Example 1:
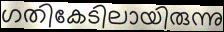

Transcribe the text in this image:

ഗതികേടിലായിരുന്നു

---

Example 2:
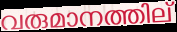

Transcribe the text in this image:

വരുമാനത്തില്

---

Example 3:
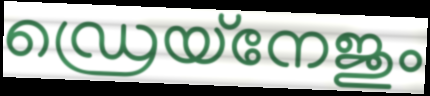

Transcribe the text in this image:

ഡ്രെയ്നേജും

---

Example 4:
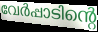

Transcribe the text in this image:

വേർപ്പാടിന്റെ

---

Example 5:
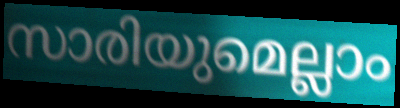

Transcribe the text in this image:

സാരിയുമെല്ലാം